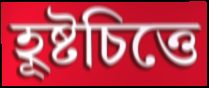
হূষ্টচিত্তে